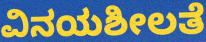
ವಿನಯಶೀಲತೆ